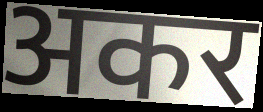
अकर